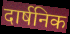
दार्षनिक